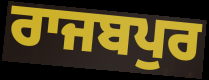
ਰਾਜਬਪੁਰ